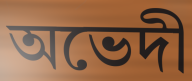
অভেদী